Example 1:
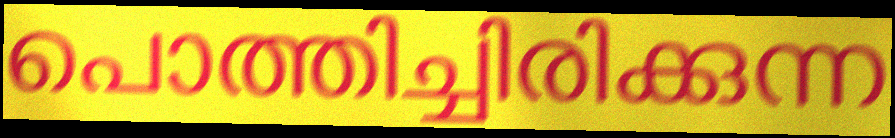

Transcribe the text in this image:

പൊത്തിച്ചിരിക്കുന്ന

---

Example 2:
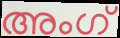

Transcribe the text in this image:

അംഗ്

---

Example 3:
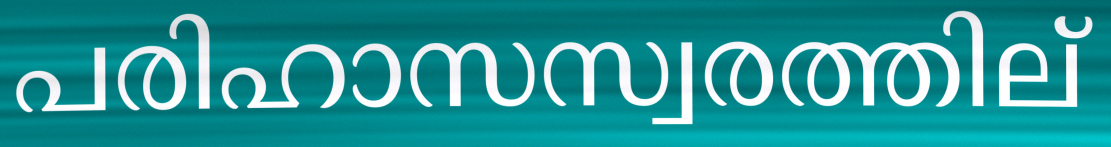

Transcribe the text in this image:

പരിഹാസസ്വരത്തില്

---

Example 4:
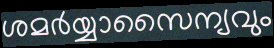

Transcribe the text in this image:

ശമർയ്യാസൈന്യവും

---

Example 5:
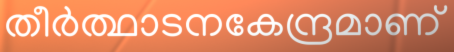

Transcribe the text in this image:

തീർത്ഥാടനകേന്ദ്രമാണ്